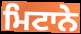
ਮਿਟਾਨੇ